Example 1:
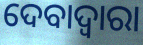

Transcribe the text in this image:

ଦେବାଦ୍ବାରା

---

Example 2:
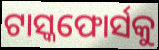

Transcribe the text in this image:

ଟାସ୍କଫୋର୍ସକୁ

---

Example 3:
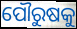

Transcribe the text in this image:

ପୌରୁଷକୁ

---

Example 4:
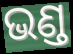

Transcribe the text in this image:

ଭଣ୍ଡ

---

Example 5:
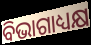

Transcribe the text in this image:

ବିଭାଗାଧ୍ୟକ୍ଷ